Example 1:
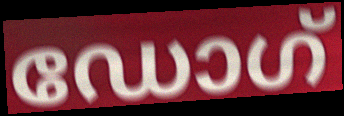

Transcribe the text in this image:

ഡോഗ്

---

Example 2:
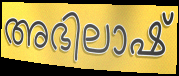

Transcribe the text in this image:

അഭിലാഷ്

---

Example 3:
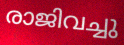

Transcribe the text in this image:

രാജിവച്ചു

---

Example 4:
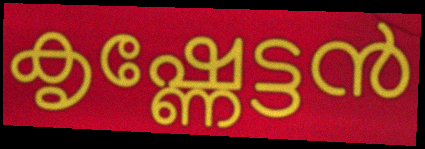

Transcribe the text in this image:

കൃഷ്ണേട്ടൻ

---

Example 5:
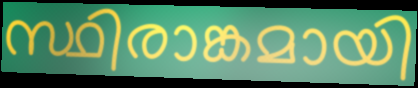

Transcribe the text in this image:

സ്ഥിരാങ്കമായി